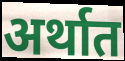
अर्थात